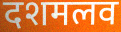
दशमलव